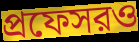
প্রফেসরও